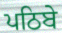
ਪਠਿਬੇ